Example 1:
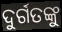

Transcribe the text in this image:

ଦୁର୍ଗତଙ୍କୁ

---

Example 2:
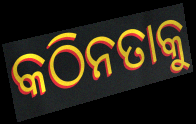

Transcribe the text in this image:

କଠିନତାକୁ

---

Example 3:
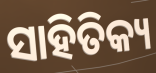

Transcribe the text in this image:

ସାହିତିକ୍ୟ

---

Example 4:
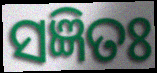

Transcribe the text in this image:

ସଜ୍ଞିତଃ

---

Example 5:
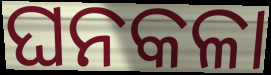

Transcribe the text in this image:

ଘନକଳା